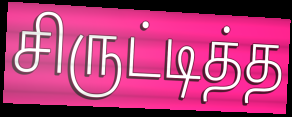
சிருட்டித்த